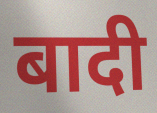
बादी